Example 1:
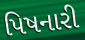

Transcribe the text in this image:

પિષનારી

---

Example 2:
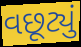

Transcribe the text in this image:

વછૂટ્યું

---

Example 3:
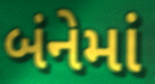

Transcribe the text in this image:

બંનેમાં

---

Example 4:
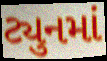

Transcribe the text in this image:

ટ્યુનમાં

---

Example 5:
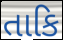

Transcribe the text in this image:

તાકિ